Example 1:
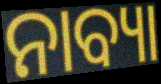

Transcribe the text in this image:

ନାବ୍ୟା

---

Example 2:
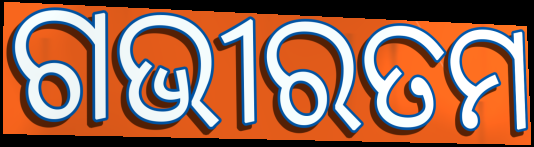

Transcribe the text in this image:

ଗଭୀରତମ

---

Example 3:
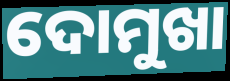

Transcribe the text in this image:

ଦୋମୁଖା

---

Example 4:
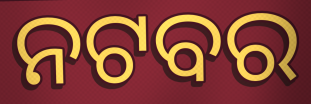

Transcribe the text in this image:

ନଟବର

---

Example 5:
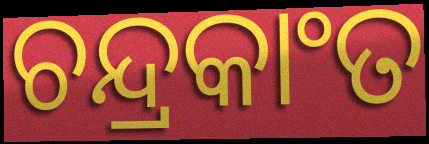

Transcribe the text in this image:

ଚନ୍ଦ୍ରକାଂତ